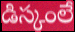
డిస్కంలే